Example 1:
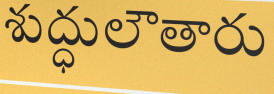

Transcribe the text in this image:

శుద్ధులౌతారు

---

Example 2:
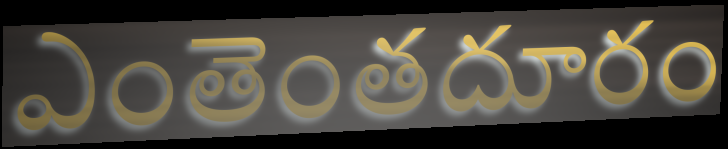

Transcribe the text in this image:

ఎంతెంతదూరం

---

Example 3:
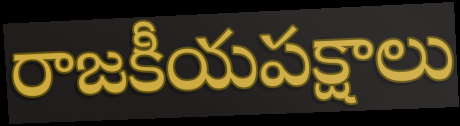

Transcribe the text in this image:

రాజకీయపక్షాలు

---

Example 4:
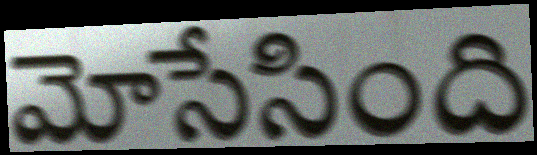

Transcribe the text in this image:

మోసేసింది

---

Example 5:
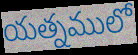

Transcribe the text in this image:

యత్నములో